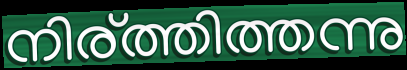
നിര്ത്തിത്തന്നു